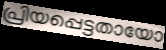
പ്രിയപ്പെട്ടതായോ